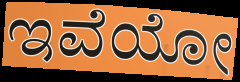
ಇವೆಯೋ